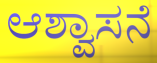
ಆಶ್ವಾಸನೆ